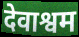
देवाश्वम